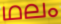
ഥലം